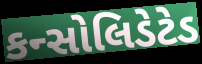
કન્સોલિડેટેડ